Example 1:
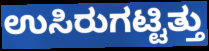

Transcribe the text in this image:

ಉಸಿರುಗಟ್ಟಿತ್ತು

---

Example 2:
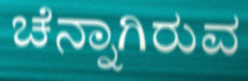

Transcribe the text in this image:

ಚೆನ್ನಾಗಿರುವ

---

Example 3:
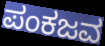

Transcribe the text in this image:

ಪಂಕಜವ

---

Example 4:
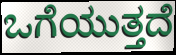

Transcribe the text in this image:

ಒಗೆಯುತ್ತದೆ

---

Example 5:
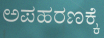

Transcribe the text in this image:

ಅಪಹರಣಕ್ಕೆ